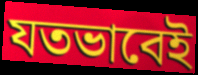
যতভাবেই